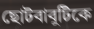
ছোটবাবুটিকে